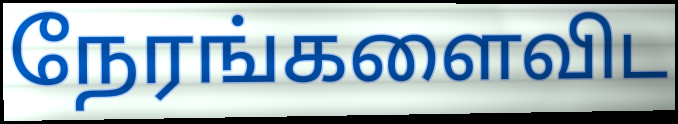
நேரங்களைவிட